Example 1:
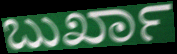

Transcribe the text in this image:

ಬುರ್ಖಾ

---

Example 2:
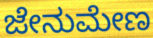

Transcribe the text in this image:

ಜೇನುಮೇಣ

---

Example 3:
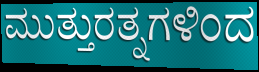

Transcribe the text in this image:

ಮುತ್ತುರತ್ನಗಳಿಂದ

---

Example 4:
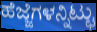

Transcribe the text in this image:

ಹೆಜ್ಜೆಗಳನ್ನಿಟ್ಟು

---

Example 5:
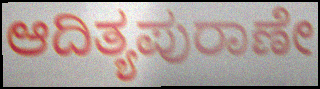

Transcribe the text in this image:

ಆದಿತ್ಯಪುರಾಣೇ